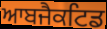
ਆਬਜੈਕਟਿਡ